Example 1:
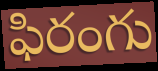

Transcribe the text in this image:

ఫిరంగు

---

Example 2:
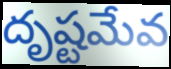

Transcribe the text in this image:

దృష్టమేవ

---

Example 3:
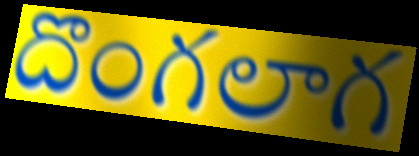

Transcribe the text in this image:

దొంగలాగ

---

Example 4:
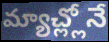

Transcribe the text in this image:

మ్యాచ్ల్లోనే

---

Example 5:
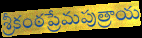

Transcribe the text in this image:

శ్రీకంఠప్రేమపుత్రాయ